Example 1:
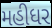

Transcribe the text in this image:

મહીધર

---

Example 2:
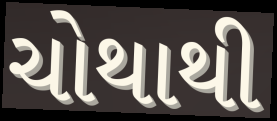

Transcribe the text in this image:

ચોથાથી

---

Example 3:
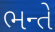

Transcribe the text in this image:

ભન્તે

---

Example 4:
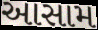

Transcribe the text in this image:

આસામ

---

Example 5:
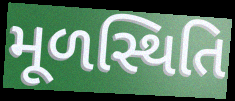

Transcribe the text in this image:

મૂળસ્થિતિ